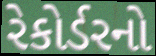
રેકોર્ડરનો